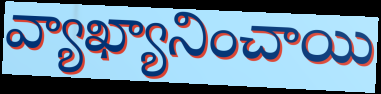
వ్యాఖ్యానించాయి